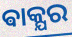
ଵାକ୍ଯର